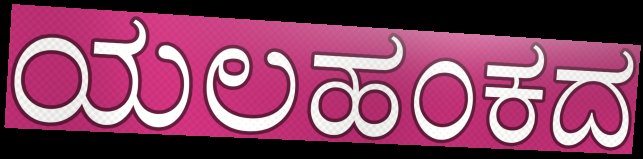
ಯಲಹಂಕದ